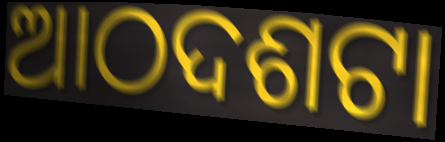
ଆଠଦଶଟା